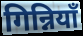
गिन्नियाँ